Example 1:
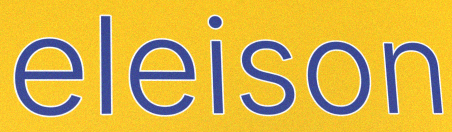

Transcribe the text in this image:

eleison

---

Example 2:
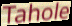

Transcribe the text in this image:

Tahole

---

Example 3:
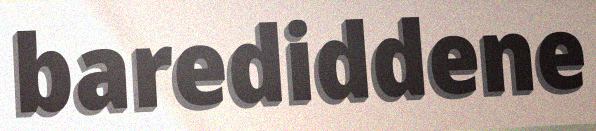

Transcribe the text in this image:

barediddene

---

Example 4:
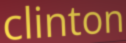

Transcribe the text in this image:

clinton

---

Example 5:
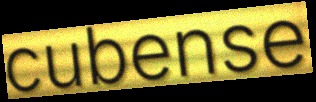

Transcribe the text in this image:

cubense